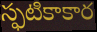
స్ఫటికాకార